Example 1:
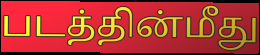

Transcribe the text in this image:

படத்தின்மீது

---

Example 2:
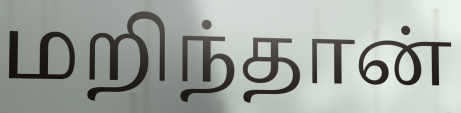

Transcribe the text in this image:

மறிந்தான்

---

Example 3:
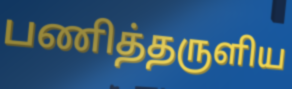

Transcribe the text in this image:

பணித்தருளிய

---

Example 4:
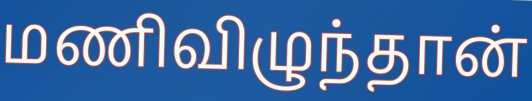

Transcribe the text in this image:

மணிவிழுந்தான்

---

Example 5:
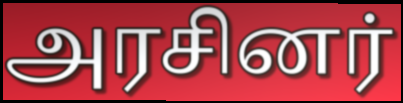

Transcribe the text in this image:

அரசினர்